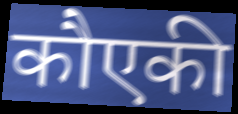
कौएकी